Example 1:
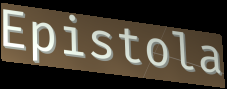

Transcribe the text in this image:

Epistola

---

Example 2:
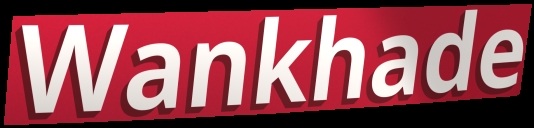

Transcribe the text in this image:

Wankhade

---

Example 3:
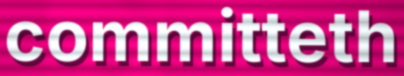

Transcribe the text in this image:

committeth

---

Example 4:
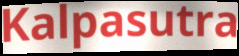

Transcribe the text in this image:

Kalpasutra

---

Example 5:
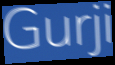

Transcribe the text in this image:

Gurji